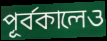
পূর্বকালেও